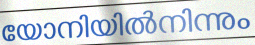
യോനിയിൽനിന്നും